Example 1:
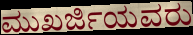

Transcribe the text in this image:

ಮುಖರ್ಜಿಯವರು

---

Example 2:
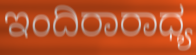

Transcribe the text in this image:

ಇಂದಿರಾರಾಧ್ಯ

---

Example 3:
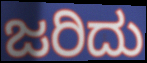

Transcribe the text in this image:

ಜರಿದು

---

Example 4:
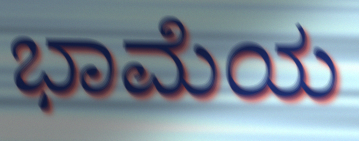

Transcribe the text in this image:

ಭಾಮೆಯ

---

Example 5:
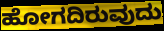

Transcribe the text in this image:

ಹೋಗದಿರುವುದು